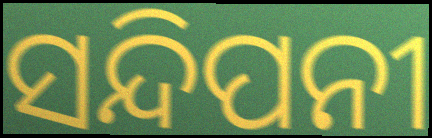
ସନ୍ଦିପନୀ